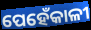
ପେହେଁକାଳୀ